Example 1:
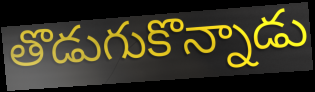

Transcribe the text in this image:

తొడుగుకొన్నాడు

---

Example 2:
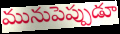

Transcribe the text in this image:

మునుపెప్పుడూ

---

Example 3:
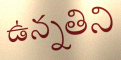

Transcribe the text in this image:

ఉన్నతిని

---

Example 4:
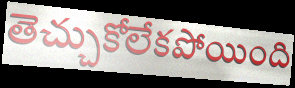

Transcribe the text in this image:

తెచ్చుకోలేకపోయింది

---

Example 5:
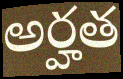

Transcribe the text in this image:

అర్హత